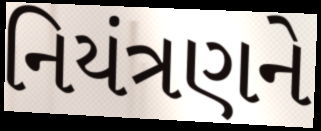
નિયંત્રણને